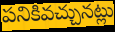
పనికివచ్చునట్లు